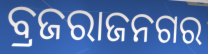
ବ୍ରଜରାଜନଗର